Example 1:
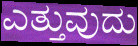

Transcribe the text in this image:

ಎತ್ತುವುದು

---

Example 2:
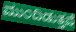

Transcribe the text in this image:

ಮುಂದಿಡುತ್ತವೆ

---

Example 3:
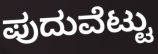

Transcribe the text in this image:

ಪುದುವೆಟ್ಟು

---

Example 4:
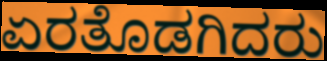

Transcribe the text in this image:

ಏರತೊಡಗಿದರು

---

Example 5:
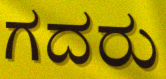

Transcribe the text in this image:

ಗದರು